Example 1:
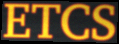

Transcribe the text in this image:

ETCS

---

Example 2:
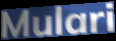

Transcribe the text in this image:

Mulari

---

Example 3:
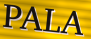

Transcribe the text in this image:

PALA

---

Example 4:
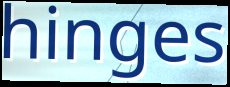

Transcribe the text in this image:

hinges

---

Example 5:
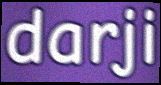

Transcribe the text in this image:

darji